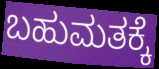
ಬಹುಮತಕ್ಕೆ